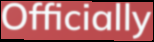
Officially